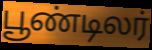
பூண்டிலர்